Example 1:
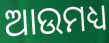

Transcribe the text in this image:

ଆଉମଧ୍ୟ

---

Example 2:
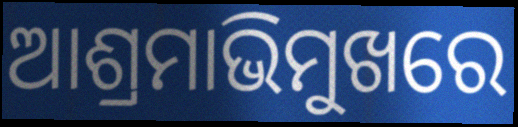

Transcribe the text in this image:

ଆଶ୍ରମାଭିମୁଖରେ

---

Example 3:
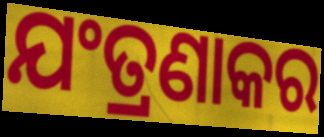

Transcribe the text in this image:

ଯଂତ୍ରଣାକର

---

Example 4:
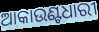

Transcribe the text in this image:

ଆକାଉଣ୍ଟଧାରୀ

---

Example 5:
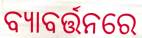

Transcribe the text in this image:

ବ୍ୟାବର୍ତ୍ତନରେ